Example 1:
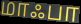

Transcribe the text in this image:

மாஃபா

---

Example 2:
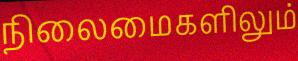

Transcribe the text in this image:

நிலைமைகளிலும்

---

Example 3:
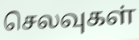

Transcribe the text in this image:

செலவுகள்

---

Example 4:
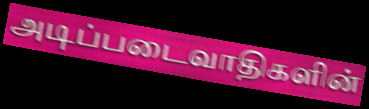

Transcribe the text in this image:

அடிப்படைவாதிகளின்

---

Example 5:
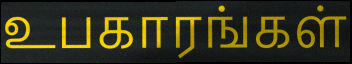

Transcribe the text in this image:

உபகாரங்கள்